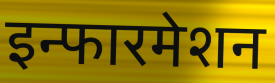
इन्फारमेशन